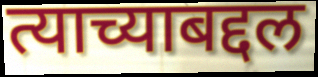
त्याच्याबद्दल